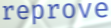
reprove